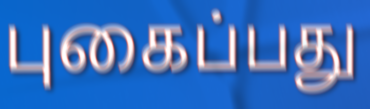
புகைப்பது